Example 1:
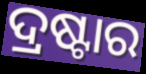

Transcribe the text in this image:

ଦ୍ରଷ୍ଟାର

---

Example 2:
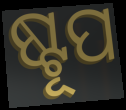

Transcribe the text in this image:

ଷ୍ଟୂପ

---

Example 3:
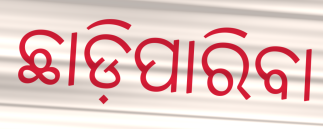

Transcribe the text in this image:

ଛାଡ଼ିପାରିବା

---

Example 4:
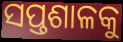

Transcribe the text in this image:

ସପ୍ତଶାଳକୁ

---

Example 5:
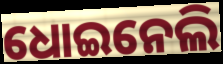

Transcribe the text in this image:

ଧୋଇନେଲି